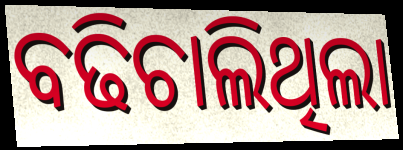
ବଢିଚାଲିଥିଲା